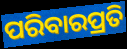
ପରିବାରପ୍ରତି